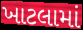
ખાટલામાં